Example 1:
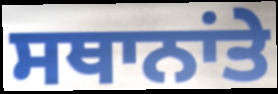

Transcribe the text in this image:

ਸਥਾਨਾਂਤੇ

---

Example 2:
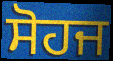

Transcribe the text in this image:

ਸੋਹਜ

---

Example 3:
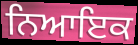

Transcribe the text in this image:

ਨਿਆਇਕ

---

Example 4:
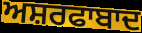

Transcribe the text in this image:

ਅਸ਼ਰਫਾਬਾਦ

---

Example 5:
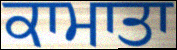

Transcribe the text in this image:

ਕਾਮਾਤਾ